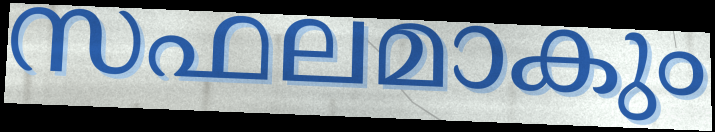
സഫലമാകും